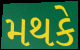
મથકે